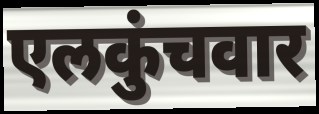
एलकुंचवार